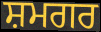
ਸ਼ਮਗਰ